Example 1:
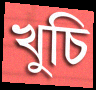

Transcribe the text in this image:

খুচি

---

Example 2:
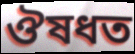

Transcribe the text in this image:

ঔষধত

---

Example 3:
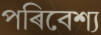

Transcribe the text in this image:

পৰিবেশ্য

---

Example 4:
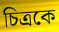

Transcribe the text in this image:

চিত্ৰকে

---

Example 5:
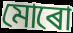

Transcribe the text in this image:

মোৰো